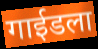
गाईडला